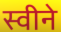
स्वीने